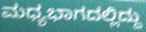
ಮಧ್ಯಭಾಗದಲ್ಲಿದ್ದು